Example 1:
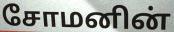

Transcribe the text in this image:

சோமனின்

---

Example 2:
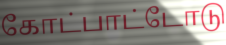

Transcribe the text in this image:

கோட்பாட்டோடு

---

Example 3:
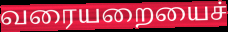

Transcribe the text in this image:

வரையறையைச்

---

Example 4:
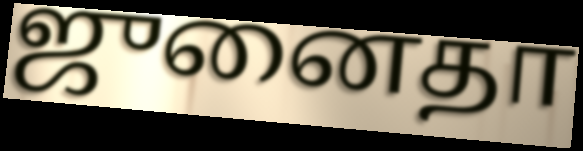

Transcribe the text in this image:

ஜுனைதா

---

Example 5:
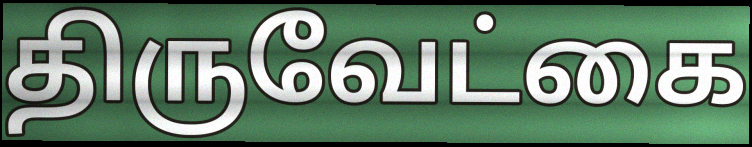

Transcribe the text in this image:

திருவேட்கை